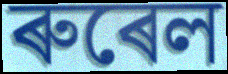
ৰুৰেল